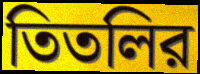
তিতলির